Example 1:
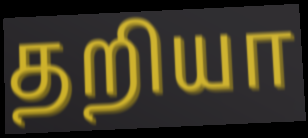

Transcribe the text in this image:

தறியா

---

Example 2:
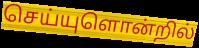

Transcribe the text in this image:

செய்யுளொன்றில்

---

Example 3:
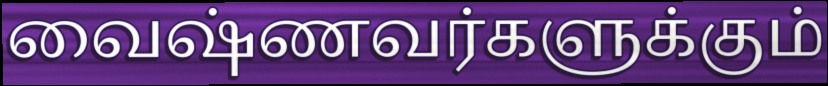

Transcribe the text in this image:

வைஷ்ணவர்களுக்கும்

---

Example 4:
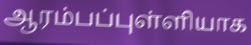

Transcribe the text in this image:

ஆரம்பப்புள்ளியாக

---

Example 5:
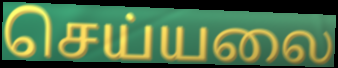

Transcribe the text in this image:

செய்யலை